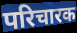
परिचारक